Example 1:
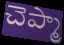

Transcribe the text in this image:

చెప్మా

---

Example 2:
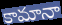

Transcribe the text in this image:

కామానా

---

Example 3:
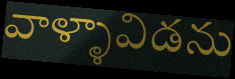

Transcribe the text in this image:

వాళ్ళావిడను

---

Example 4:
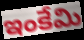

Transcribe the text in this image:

ఇంకేమి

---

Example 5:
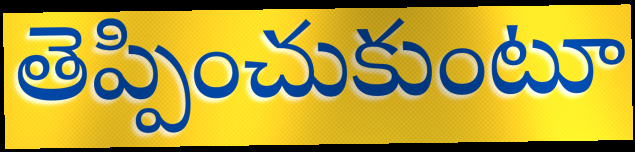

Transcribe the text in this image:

తెప్పించుకుంటూ